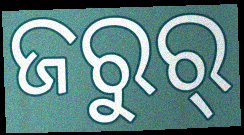
ଜରୁର୍